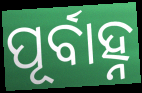
ପୂର୍ବାହ୍ନ